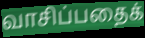
வாசிப்பதைக்